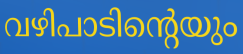
വഴിപാടിന്റെയും